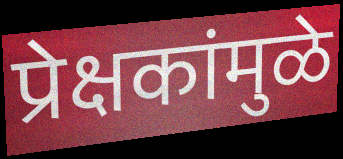
प्रेक्षकांमुळे